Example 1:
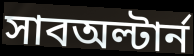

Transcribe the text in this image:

সাবঅল্টার্ন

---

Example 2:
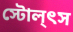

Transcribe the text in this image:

স্টোল্ৎস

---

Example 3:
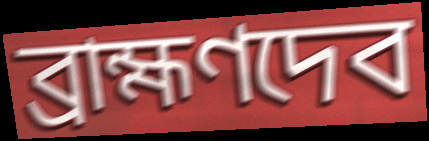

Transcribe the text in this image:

ব্রাহ্মণদেব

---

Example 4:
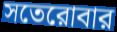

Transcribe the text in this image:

সতেরোবার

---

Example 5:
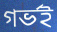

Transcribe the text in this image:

গর্ভই